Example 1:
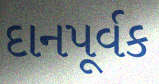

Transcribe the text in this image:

દાનપૂર્વક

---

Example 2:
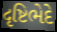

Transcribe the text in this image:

દૃષ્ટિભેદે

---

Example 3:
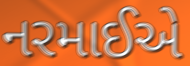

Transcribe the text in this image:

નરમાઈએ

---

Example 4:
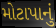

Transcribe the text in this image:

મોટાપાનું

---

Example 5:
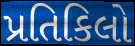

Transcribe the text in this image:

પ્રતિકિલો